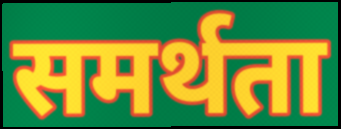
समर्थता